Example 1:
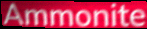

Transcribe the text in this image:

Ammonite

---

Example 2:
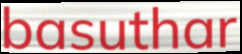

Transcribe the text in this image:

basuthar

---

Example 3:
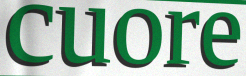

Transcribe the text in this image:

cuore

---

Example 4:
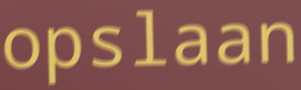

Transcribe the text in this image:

opslaan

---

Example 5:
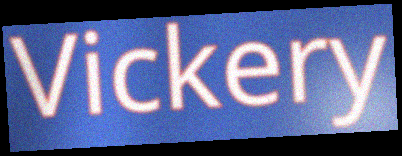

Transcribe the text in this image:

Vickery